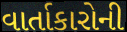
વાર્તાકારોની